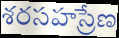
శరసహస్రేణ